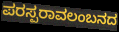
ಪರಸ್ಪರಾವಲಂಬನದ